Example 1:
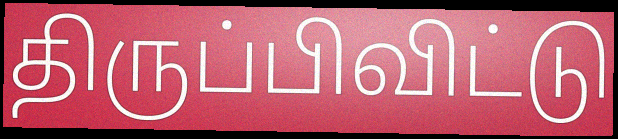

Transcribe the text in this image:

திருப்பிவிட்டு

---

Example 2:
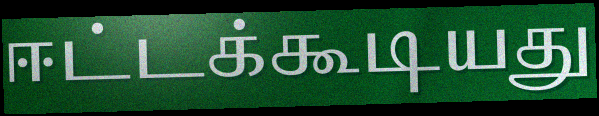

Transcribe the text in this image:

ஈட்டக்கூடியது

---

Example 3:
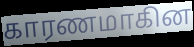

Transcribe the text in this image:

காரணமாகின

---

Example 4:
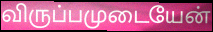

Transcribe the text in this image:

விருப்பமுடையேன்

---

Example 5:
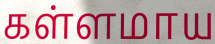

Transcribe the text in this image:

கள்ளமாய